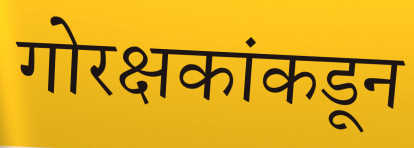
गोरक्षकांकडून